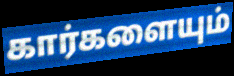
கார்களையும்